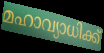
മഹാവ്യാധിക്ക്